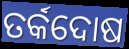
ତର୍କଦୋଷ